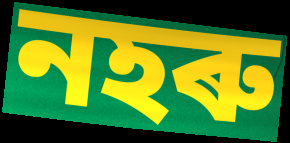
নহৰু